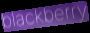
blackberry